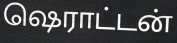
ஷெராட்டன்